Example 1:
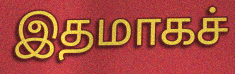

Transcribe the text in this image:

இதமாகச்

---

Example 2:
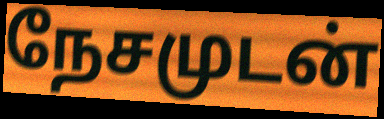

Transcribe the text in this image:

நேசமுடன்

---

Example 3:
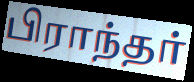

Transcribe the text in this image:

பிராந்தர்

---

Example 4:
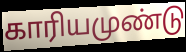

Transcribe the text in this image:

காரியமுண்டு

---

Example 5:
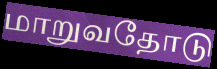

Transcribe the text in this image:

மாறுவதோடு